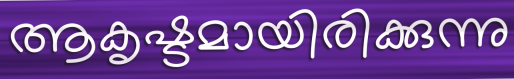
ആകൃഷ്ടമായിരിക്കുന്നു